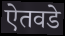
ऐतवडे